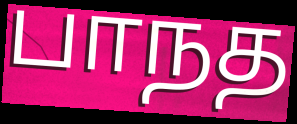
பாநத